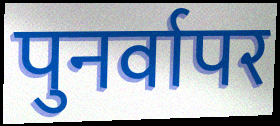
पुनर्वापर